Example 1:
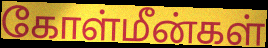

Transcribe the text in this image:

கோள்மீன்கள்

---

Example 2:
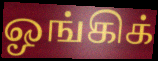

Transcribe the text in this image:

ஓங்கிக்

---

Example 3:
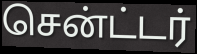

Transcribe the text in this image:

சென்ட்டர்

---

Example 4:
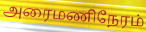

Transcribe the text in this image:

அரைமணிநேரம்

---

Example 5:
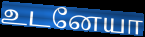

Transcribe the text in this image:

உடனேயா